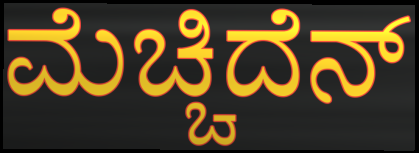
ಮೆಚ್ಚಿದೆನ್